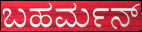
ಬಹರ್ಮನ್